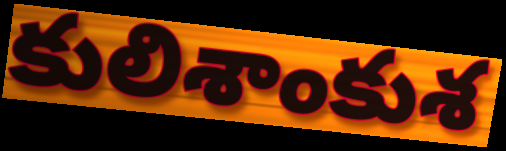
కులిశాంకుశ